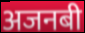
अजनबी